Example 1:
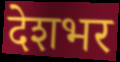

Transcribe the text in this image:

देशभर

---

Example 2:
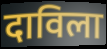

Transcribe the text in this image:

दाविला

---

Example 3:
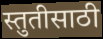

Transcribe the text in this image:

स्तुतीसाठी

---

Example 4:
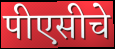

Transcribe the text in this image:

पीएसीचे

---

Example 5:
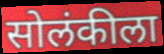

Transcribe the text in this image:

सोलंकीला